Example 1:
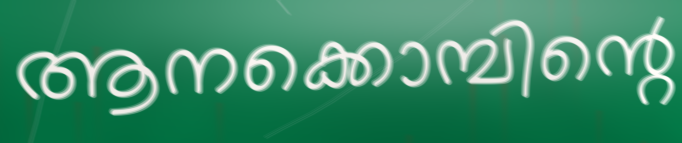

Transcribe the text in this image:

ആനക്കൊമ്പിന്റെ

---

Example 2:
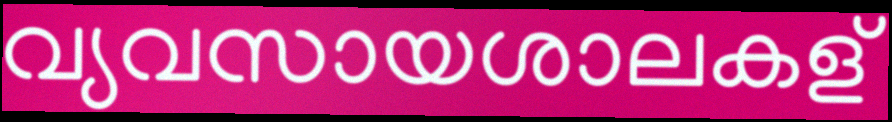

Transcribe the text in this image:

വ്യവസായശാലകള്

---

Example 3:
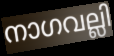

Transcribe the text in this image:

നാഗവല്ലി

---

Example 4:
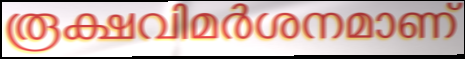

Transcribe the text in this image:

രൂക്ഷവിമർശനമാണ്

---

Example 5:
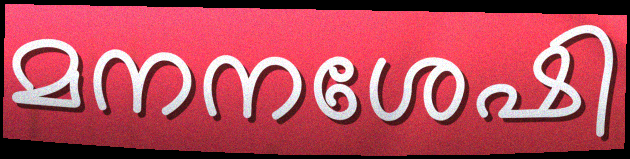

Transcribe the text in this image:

മനനശേഷി